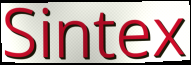
Sintex